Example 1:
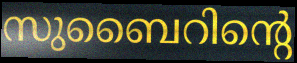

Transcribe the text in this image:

സുബൈറിന്റെ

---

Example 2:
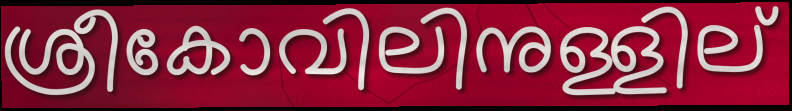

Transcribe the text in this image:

ശ്രീകോവിലിനുള്ളില്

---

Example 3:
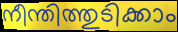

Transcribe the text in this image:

നീന്തിത്തുടിക്കാം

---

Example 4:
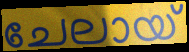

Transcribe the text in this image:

ചേലായ്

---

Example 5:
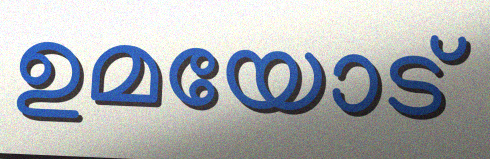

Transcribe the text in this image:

ഉമയോട്